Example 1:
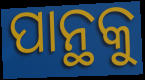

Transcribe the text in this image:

ପାନ୍ଥକୁ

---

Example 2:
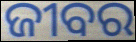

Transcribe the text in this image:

ଜୀବର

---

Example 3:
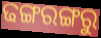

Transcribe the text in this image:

ଢଙ୍ଗରଙ୍ଗରୁ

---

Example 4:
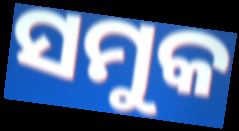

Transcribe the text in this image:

ସମୁକ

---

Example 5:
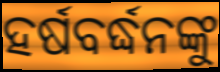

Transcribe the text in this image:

ହର୍ଷବର୍ଦ୍ଧନଙ୍କୁ